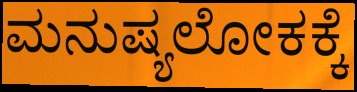
ಮನುಷ್ಯಲೋಕಕ್ಕೆ